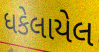
ધકેલાયેલ